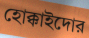
হোক্কাইদোর